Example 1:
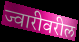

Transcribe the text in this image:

ज्वारीवरील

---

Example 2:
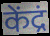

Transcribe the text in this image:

केंद्रं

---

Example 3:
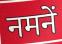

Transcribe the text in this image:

नमनें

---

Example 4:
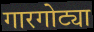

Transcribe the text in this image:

गारगोट्या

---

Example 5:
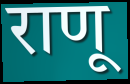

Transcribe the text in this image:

राणू